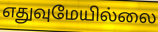
எதுவுமேயில்லை